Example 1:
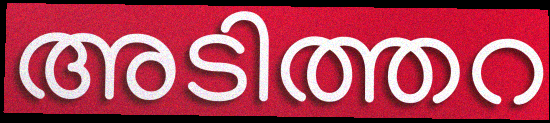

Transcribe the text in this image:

അടിത്തറ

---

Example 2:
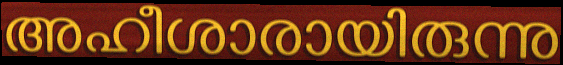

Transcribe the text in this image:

അഹീശാരായിരുന്നു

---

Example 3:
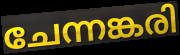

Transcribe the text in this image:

ചേന്നങ്കരി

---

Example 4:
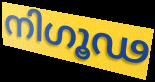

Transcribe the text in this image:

നിഗൂഢ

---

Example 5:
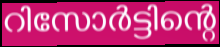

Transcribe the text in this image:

റിസോർട്ടിന്റെ